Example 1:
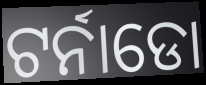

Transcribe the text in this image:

ଟର୍ନାଡୋ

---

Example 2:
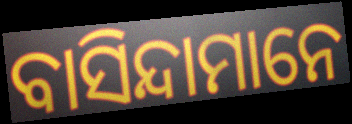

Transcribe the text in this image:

ବାସିନ୍ଦାମାନେ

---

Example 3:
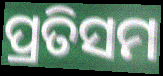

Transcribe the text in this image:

ପ୍ରତିସମ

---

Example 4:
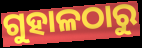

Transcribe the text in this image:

ଗୁହାଳଠାରୁ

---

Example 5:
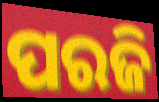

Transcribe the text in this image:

ପରଜି